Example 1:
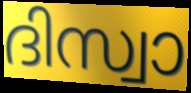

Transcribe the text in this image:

ദിസ്വാ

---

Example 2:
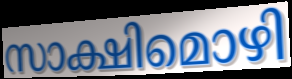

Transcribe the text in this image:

സാക്ഷിമൊഴി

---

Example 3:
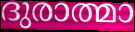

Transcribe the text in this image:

ദുരാത്മാ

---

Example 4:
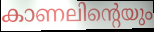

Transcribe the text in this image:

കാണലിന്റെയും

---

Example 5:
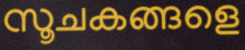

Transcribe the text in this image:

സൂചകങ്ങളെ